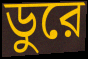
ডুরে